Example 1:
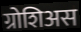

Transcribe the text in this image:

ग्रोशिअस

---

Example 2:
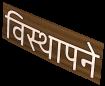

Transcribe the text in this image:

विस्थापने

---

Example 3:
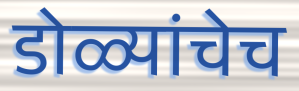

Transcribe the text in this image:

डोळ्यांचेच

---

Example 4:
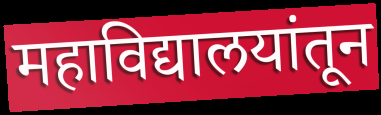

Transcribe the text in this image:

महाविद्यालयांतून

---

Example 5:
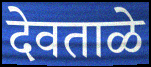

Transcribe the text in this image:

देवताळे